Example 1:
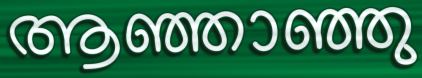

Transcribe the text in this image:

ആഞ്ഞാഞ്ഞു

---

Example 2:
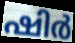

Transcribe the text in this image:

ഷിർ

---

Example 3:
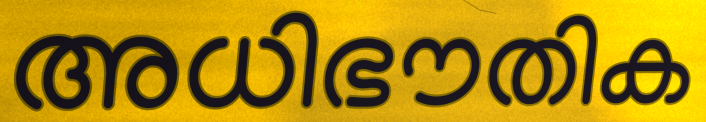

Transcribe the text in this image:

അധിഭൗതിക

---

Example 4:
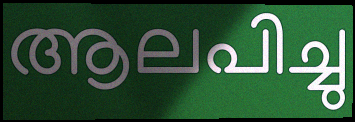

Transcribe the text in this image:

ആലപിച്ചു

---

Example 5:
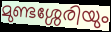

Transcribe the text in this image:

മുണ്ടശ്ശേരിയും